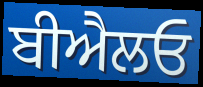
ਬੀਐਲਓ